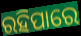
ରହିପାରେ